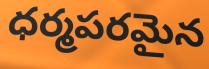
ధర్మపరమైన